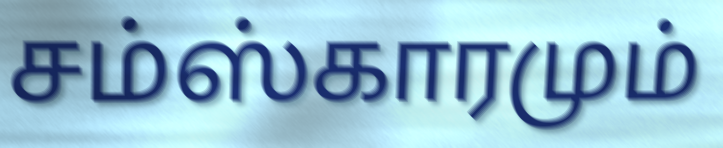
சம்ஸ்காரமும்